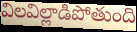
విలవిల్లాడిపోతుంది